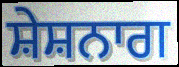
ਸ਼ੇਸ਼ਨਾਗ